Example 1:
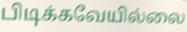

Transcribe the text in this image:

பிடிக்கவேயில்லை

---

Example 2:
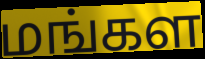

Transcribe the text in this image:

மங்கள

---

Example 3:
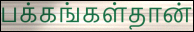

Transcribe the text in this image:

பக்கங்கள்தான்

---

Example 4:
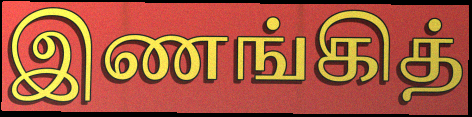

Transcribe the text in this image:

இணங்கித்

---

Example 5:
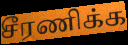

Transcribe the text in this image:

சீரணிக்க